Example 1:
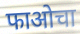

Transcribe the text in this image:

फाओचा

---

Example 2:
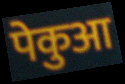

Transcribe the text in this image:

पेकुआ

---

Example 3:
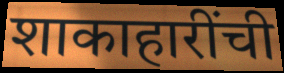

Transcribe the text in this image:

शाकाहारींची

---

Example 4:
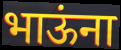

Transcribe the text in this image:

भाऊंना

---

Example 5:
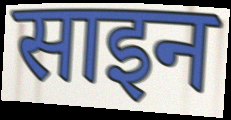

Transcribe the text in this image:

साइन